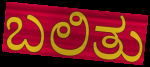
ಬಲಿತು